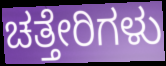
ಚತ್ತೇರಿಗಳು